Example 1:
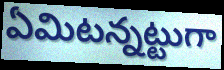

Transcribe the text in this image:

ఏమిటన్నట్టుగా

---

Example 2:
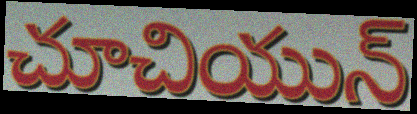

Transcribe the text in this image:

చూచియున్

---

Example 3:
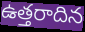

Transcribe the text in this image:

ఉత్తరాదిన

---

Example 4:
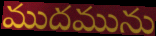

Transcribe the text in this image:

ముదమును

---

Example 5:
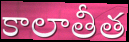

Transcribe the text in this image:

కాలాతీత